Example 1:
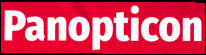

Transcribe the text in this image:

Panopticon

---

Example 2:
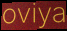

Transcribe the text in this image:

oviya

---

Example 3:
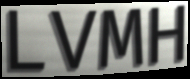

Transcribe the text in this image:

LVMH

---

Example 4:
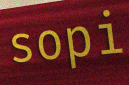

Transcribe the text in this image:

sopi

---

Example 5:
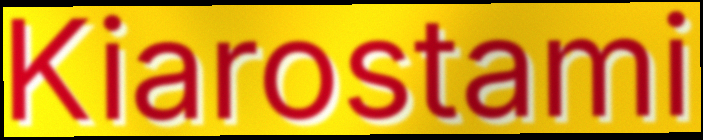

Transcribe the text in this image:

Kiarostami